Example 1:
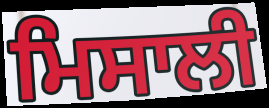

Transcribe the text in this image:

ਮਿਸਾਲੀ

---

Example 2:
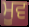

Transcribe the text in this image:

ਮੂਵ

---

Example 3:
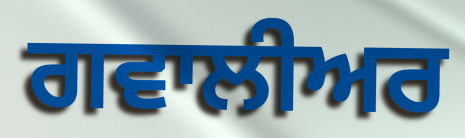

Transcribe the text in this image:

ਗਵਾਲੀਅਰ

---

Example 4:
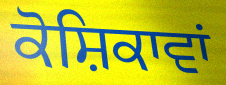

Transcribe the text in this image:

ਕੋਸ਼ਿਕਾਵਾਂ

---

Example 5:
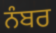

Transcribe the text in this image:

ਨੰਬਰ